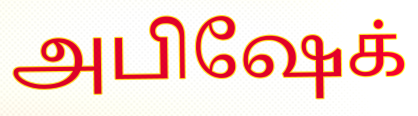
அபிஷேக்